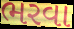
ભરવા